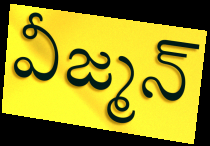
వీజ్మన్